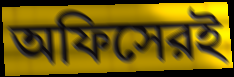
অফিসেরই